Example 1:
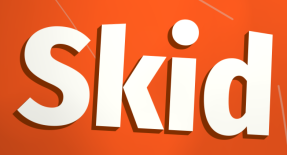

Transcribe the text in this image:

Skid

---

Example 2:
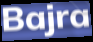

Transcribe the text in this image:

Bajra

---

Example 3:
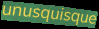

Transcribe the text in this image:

unusquisque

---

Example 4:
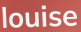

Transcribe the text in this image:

louise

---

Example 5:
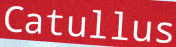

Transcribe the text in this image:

Catullus